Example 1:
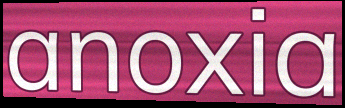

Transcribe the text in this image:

anoxia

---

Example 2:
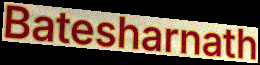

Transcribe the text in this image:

Batesharnath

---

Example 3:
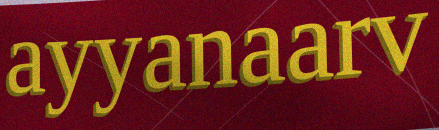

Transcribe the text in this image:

ayyanaarv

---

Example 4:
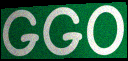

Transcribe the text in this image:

GGO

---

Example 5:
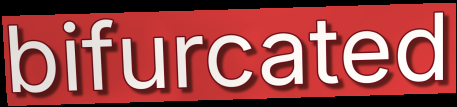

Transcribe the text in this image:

bifurcated